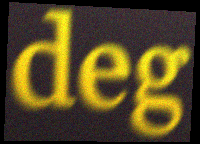
deg